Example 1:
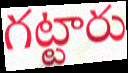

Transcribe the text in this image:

గట్టారు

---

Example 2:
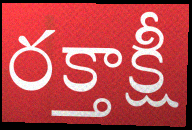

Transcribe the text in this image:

రక్తాక్షీ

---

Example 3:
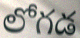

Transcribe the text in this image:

లోగడ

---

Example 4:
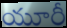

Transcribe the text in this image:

యూరీ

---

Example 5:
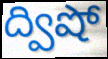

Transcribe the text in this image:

ద్విషో